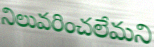
నిలువరించలేమని